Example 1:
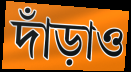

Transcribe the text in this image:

দাঁড়াও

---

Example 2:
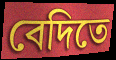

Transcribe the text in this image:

বেদিতে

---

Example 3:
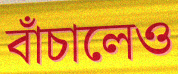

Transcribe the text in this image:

বাঁচালেও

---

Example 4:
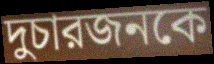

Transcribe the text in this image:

দুচারজনকে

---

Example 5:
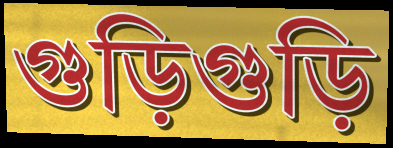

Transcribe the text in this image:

গুড়িগুড়ি